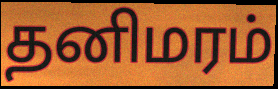
தனிமரம்